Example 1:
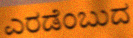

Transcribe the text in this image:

ಎರಡೆಂಬುದ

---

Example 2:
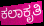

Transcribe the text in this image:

ಕಲಾಕೃತಿ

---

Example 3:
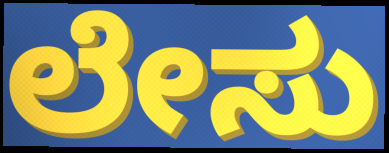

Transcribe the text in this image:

ಲೇಸು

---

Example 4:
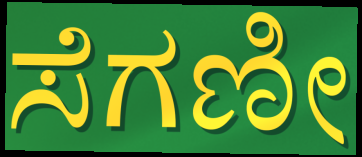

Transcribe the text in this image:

ಸೆಗಣೀ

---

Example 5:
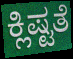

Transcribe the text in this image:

ಕ್ಲಿಷ್ಟತೆ